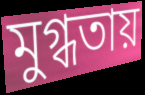
মুগ্ধতায়